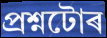
প্ৰশ্নটোৰ